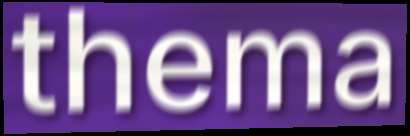
thema